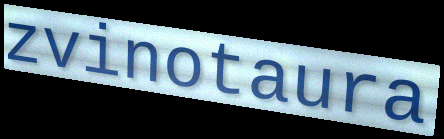
zvinotaura